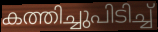
കത്തിച്ചുപിടിച്ച്